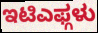
ಇಟಿಎಫ್ಗಳು